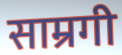
साम्रगी